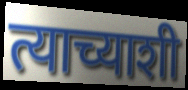
त्याच्याशी